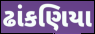
ઢાંકણિયા